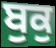
ਬੁਕੁ